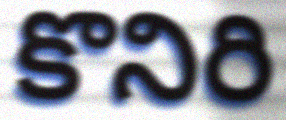
కొనిరి